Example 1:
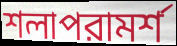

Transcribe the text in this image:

শলাপরামর্শ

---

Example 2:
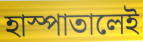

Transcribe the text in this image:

হাস্পাতালেই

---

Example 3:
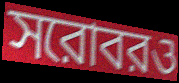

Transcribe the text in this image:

সরোবরও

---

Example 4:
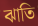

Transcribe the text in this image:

ঝাতি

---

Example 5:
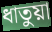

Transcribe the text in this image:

ধাতুয়া